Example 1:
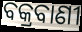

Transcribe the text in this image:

ବକ୍ରବାଣୀ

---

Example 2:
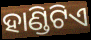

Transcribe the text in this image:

ହାଣ୍ଡିଟିଏ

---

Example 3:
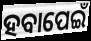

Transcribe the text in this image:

ହବାପେଇଁ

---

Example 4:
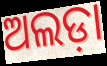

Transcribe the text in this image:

ଅଲଡ଼ା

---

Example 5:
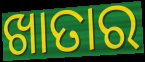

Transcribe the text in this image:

ଖାତାର